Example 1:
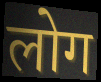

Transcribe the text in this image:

लोग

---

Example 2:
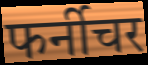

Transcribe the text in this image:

फर्नीचर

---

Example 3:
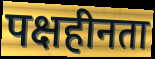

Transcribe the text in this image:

पक्षहीनता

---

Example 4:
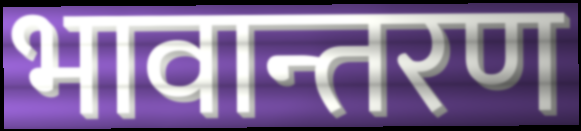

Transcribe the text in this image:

भावान्तरण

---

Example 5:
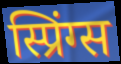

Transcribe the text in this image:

स्प्रिंग्स